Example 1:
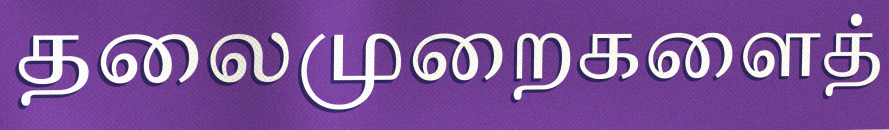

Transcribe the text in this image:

தலைமுறைகளைத்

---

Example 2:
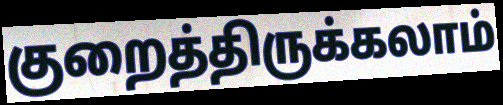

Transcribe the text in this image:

குறைத்திருக்கலாம்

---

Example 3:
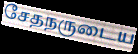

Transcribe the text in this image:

சேதநருடைய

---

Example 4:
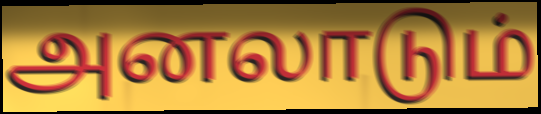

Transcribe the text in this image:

அனலாடும்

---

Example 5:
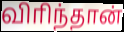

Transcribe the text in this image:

விரிந்தான்